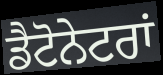
ਡੈਟੋਨੇਟਰਾਂ